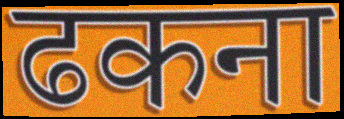
ढकना